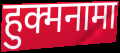
हुक्मनामा